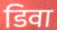
डिवा